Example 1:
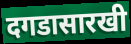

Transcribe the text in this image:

दगडासारखी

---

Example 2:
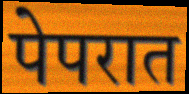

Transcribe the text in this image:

पेपरात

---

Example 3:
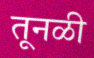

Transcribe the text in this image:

तूनळी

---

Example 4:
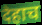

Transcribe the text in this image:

देहाच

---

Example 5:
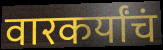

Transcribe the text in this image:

वारकर्यांचं